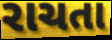
રાચતા